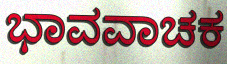
ಭಾವವಾಚಕ